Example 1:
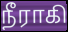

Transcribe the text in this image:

நீராகி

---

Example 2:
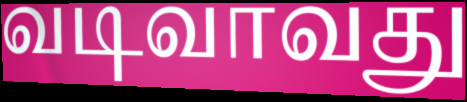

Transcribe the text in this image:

வடிவாவது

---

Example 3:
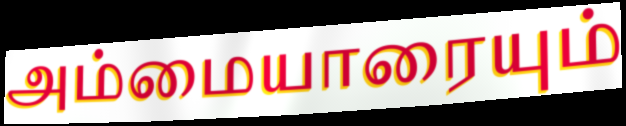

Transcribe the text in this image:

அம்மையாரையும்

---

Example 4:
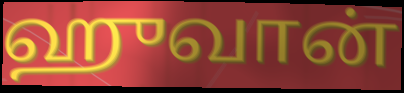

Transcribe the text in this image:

ஹுவான்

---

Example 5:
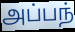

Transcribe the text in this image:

அப்பந்